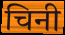
चिनी